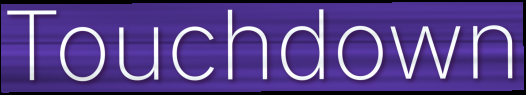
Touchdown